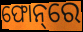
ଫୋନ୍‌ରେ